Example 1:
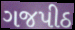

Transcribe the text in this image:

ગજપીઠ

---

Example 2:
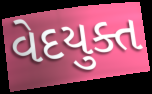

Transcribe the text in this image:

વેદયુક્ત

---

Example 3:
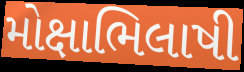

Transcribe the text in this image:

મોક્ષાભિલાષી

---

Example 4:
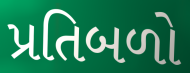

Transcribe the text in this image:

પ્રતિબળો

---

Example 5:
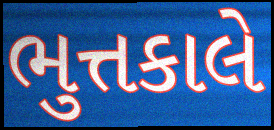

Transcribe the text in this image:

ભુત્તકાલે